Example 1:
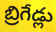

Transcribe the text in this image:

బ్రిగేడ్లు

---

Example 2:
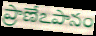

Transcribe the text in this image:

ప్రాణేఽపానం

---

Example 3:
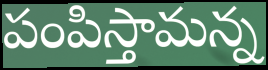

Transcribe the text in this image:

పంపిస్తామన్న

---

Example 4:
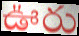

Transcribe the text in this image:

ఊరు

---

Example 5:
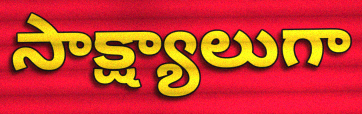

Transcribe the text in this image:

సాక్ష్యాలుగా